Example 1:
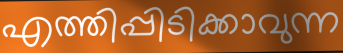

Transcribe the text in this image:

എത്തിപ്പിടിക്കാവുന്ന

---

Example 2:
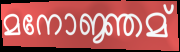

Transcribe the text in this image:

മനോജ്ഞമ്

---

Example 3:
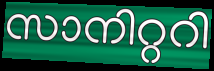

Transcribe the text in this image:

സാനിറ്ററി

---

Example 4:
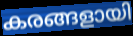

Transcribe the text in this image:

കരങ്ങളായി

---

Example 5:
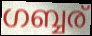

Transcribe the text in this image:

ഗബ്ബര്